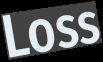
Loss